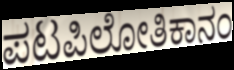
ಪಟಪಿಲೋತಿಕಾನಂ